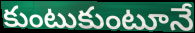
కుంటుకుంటూనే